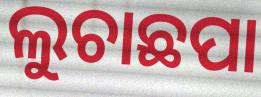
ଲୁଚାଛପା